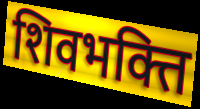
शिवभक्ति